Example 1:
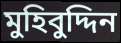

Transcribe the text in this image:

মুহিবুদ্দিন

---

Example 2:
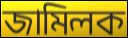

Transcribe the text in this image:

জামিলক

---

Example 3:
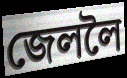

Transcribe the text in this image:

জেললৈ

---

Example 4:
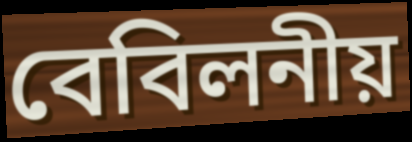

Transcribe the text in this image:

বেবিলনীয়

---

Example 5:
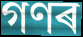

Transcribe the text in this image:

গণৰ